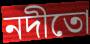
নদীতো